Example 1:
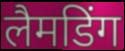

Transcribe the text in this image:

लैमडिंग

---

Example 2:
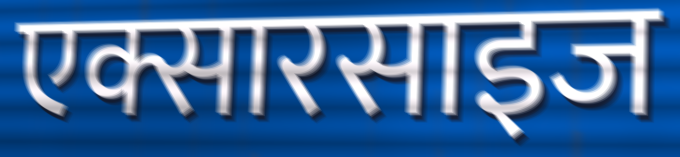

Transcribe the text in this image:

एक्सारसाइज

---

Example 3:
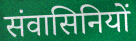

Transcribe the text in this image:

संवासिनियों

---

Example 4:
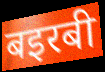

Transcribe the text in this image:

बइरबी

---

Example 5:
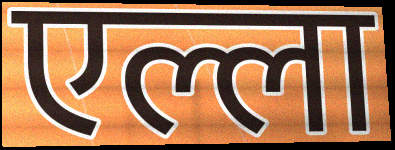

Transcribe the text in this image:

एल्ला